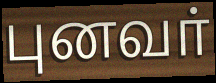
புனவர்